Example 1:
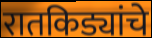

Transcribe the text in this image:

रातकिड्यांचे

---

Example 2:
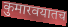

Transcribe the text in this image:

कुमारवयातच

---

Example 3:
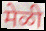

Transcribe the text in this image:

मेळी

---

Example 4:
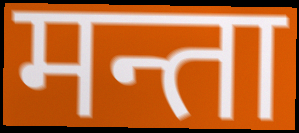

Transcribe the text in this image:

मन्ता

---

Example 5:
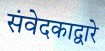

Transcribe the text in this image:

संवेदकाद्वारे